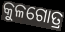
କୁଳଗୋତ୍ର